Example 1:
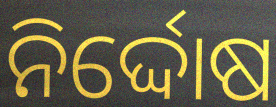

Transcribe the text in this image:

ନିର୍ଦ୍ଦୋଷ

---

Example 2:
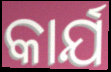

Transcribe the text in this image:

କାର୍ଯ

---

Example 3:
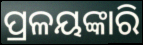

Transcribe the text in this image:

ପ୍ରଳୟଙ୍କାରି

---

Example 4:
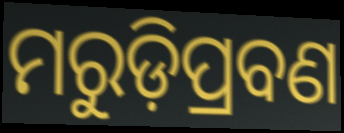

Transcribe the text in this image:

ମରୁଡ଼ିପ୍ରବଣ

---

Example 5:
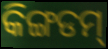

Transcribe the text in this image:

କିଙ୍ଗଡମ୍